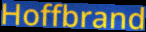
Hoffbrand